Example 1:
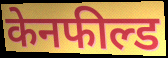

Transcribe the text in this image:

केनफील्ड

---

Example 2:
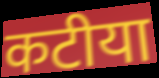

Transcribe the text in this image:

कटीया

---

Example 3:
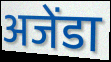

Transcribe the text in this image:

अजेंडा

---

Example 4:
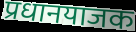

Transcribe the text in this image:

प्रधानयाजक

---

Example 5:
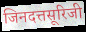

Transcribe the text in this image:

जिनदत्तसूरिजी